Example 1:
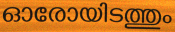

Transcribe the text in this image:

ഓരോയിടത്തും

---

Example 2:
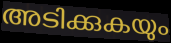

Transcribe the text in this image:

അടിക്കുകയും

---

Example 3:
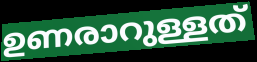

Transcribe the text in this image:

ഉണരാറുള്ളത്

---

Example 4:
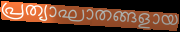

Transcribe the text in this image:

പ്രത്യാഘാതങ്ങളായ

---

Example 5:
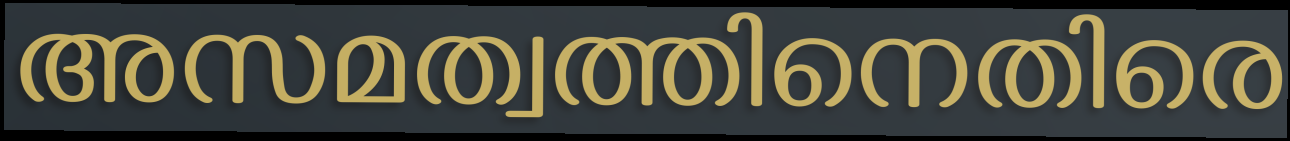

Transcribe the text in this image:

അസമത്വത്തിനെതിരെ